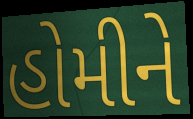
હોમીને